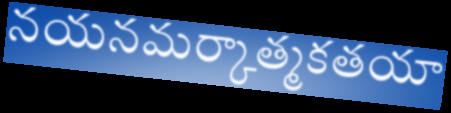
నయనమర్కాత్మకతయా